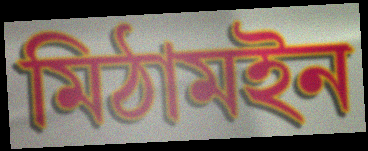
মিঠামইন